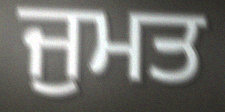
ਜੁਮਤ